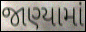
જાણ્યામાં